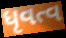
ધૃવત્વ